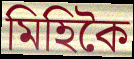
মিহিকৈ